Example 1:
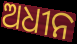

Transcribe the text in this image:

ଅଧୀନ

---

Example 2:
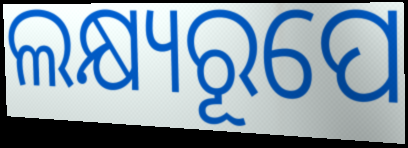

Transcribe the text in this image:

ଲକ୍ଷ୍ୟରୂପେ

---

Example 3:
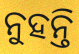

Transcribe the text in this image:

ନୁହନ୍ତି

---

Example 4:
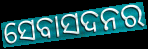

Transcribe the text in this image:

ସେବାସଦନର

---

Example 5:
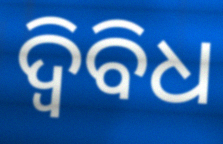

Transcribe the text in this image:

ଦ୍ଵିବିଧ